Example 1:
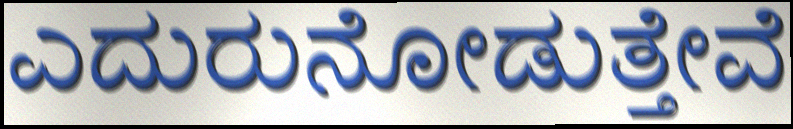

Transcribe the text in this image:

ಎದುರುನೋಡುತ್ತೇವೆ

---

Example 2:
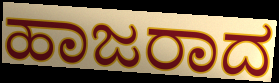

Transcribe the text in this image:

ಹಾಜರಾದ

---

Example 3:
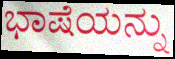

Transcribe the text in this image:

ಭಾಷೆಯನ್ನು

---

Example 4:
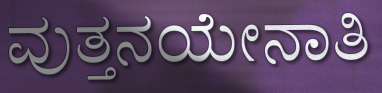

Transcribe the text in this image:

ವುತ್ತನಯೇನಾತಿ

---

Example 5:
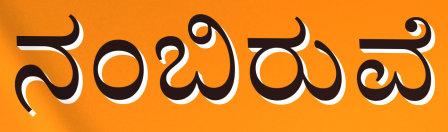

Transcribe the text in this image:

ನಂಬಿರುವೆ